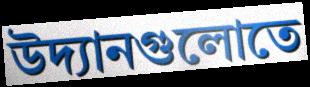
উদ্যানগুলোতে